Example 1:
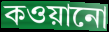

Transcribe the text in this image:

কওয়ানো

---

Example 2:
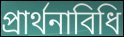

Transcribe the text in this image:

প্রার্থনাবিধি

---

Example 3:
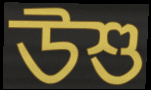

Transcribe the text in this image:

উশু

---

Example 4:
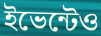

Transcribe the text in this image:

ইভেন্টেও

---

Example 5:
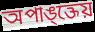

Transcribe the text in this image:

অপাঙ্‌ক্তেয়